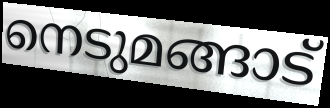
നെടുമങ്ങാട്